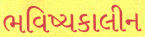
ભવિષ્યકાલીન